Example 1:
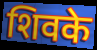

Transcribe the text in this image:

शिवके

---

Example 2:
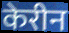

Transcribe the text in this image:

केरीन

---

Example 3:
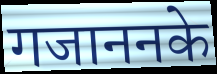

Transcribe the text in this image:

गजाननके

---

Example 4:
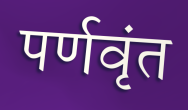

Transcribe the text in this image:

पर्णवृंत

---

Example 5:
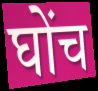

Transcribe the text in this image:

घोंच